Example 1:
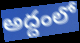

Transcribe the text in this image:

అద్దంలో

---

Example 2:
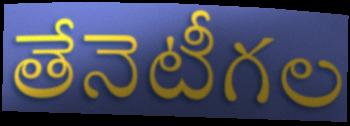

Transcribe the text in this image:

తేనెటీగల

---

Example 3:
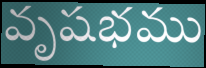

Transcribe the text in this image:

వృషభము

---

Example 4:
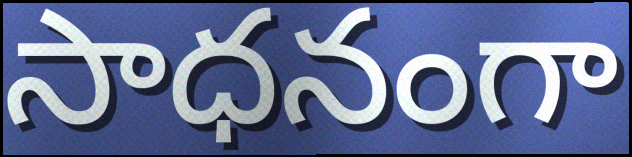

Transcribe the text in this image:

సాధనంగా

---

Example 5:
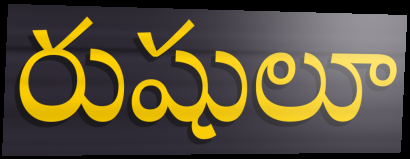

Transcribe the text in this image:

రుషులూ